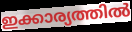
ഇക്കാര്യത്തിൽ